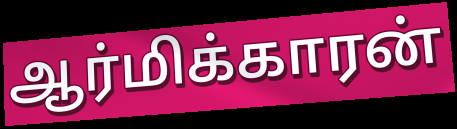
ஆர்மிக்காரன்